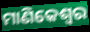
ମାଣିକେଶ୍ଵର